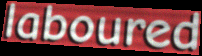
laboured